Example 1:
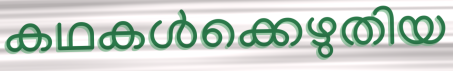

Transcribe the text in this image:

കഥകൾക്കെഴുതിയ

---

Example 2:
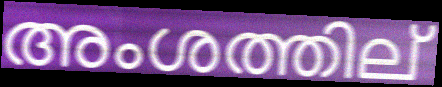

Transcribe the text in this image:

അംശത്തില്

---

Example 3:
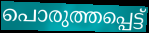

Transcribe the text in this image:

പൊരുത്തപ്പെട്ട്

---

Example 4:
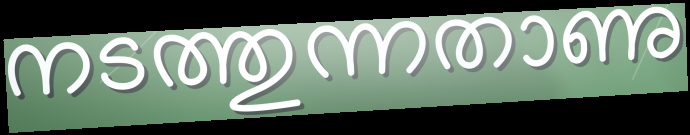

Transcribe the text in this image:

നടത്തുന്നതാണു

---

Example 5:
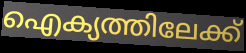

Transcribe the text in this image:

ഐക്യത്തിലേക്ക്